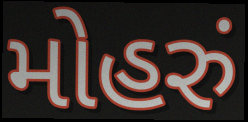
મોહરું